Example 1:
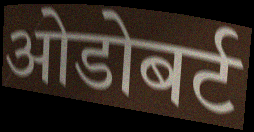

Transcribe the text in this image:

ओडोबर्ट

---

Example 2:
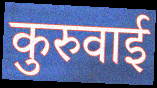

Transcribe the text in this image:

कुरुवाई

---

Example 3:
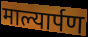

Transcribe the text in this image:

माल्यार्पण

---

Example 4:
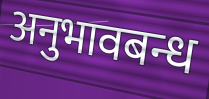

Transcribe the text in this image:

अनुभावबन्ध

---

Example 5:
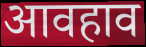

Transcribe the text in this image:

आवहाव